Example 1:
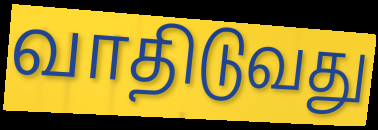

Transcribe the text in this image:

வாதிடுவது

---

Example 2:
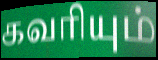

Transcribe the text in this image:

கவரியும்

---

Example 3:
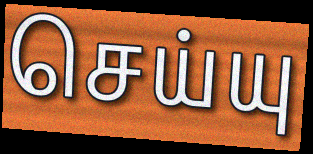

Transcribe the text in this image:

செய்யு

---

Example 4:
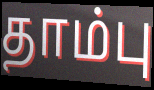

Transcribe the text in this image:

தாம்பு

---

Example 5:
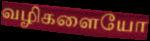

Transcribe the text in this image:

வழிகளையோ